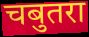
चबुतरा